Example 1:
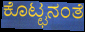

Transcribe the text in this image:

ಕೊಟ್ಟನಂತೆ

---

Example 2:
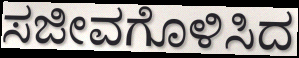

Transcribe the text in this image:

ಸಜೀವಗೊಳಿಸಿದ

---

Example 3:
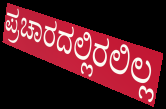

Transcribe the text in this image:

ಪ್ರಚಾರದಲ್ಲಿರಲಿಲ್ಲ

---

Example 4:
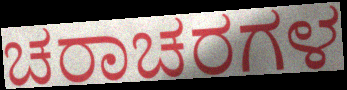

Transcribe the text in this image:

ಚರಾಚರಗಳ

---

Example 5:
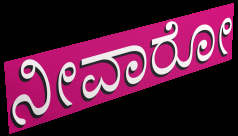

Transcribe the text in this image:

ನೀವಾರೋ